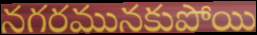
నగరమునకుపోయి